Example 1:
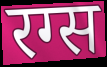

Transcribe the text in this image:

रग्स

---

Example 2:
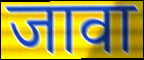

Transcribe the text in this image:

जावा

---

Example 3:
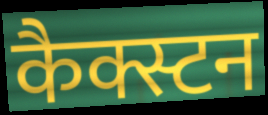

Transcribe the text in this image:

कैक्स्टन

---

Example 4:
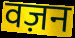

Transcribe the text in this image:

वज़न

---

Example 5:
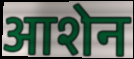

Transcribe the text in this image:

आशेन